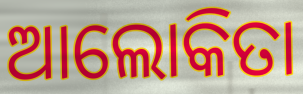
ଆଲୋକିତା